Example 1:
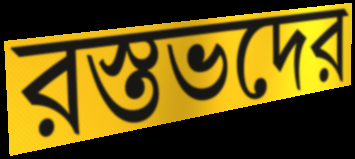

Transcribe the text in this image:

রস্তভদের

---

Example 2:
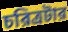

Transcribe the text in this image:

চরিত্রটার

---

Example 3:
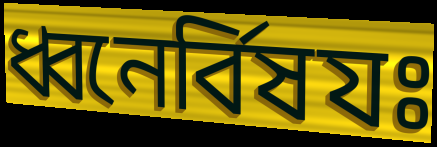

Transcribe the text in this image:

ধ্বনের্বিষযঃ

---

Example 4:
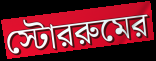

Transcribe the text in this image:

স্টোররুমের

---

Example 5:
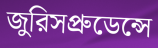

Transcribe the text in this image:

জুরিসপ্রুডেন্সে